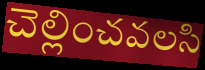
చెల్లించవలసి